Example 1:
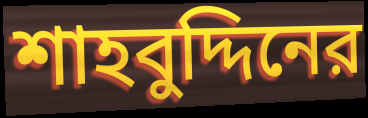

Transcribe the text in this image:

শাহবুদ্দিনের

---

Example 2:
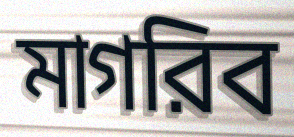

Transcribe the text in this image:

মাগরিব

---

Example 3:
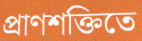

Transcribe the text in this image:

প্রাণশক্তিতে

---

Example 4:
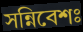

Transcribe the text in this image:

সন্নিবেশঃ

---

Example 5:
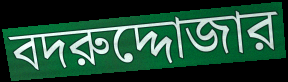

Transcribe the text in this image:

বদরুদ্দোজার